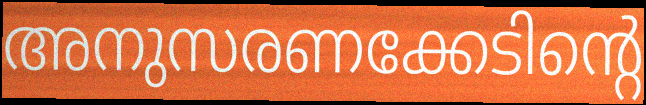
അനുസരണക്കേടിന്റെ